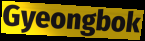
Gyeongbok